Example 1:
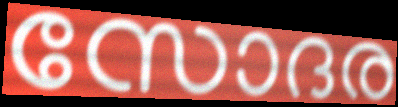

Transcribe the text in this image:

സോദര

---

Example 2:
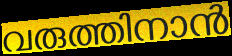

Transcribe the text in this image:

വരുത്തിനാൻ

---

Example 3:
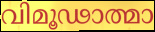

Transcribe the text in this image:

വിമൂഢാത്മാ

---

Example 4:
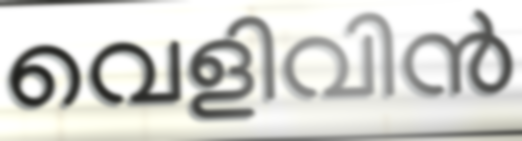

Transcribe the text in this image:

വെളിവിൻ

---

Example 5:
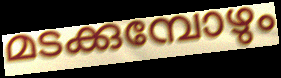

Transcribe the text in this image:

മടക്കുമ്പോഴും